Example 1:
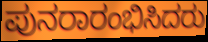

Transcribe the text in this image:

ಪುನರಾರಂಭಿಸಿದರು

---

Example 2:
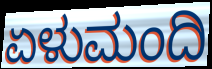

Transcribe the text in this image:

ಏಳುಮಂದಿ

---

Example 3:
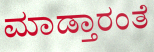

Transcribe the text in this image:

ಮಾಡ್ತಾರಂತೆ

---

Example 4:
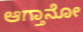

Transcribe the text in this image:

ಆಗ್ತಾನೋ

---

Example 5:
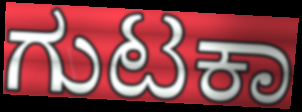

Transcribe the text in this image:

ಗುಟಕಾ